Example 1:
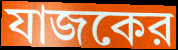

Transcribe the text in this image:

যাজকের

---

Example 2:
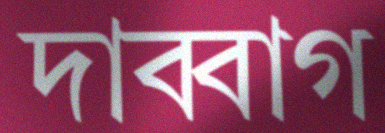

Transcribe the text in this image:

দাব্বাগ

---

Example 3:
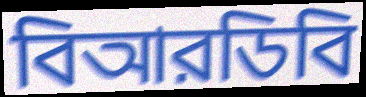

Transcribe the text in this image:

বিআরডিবি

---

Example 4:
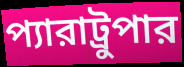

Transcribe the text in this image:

প্যারাট্রুপার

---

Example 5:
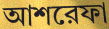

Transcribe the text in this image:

আশরেফা